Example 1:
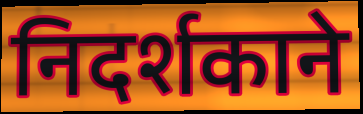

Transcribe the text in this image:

निदर्शकाने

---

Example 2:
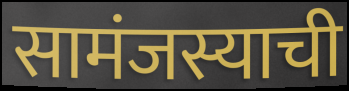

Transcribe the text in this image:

सामंजस्याची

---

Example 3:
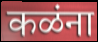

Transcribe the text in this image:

कळंना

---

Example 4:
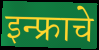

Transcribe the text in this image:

इन्फ्राचे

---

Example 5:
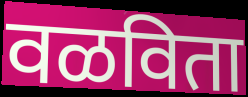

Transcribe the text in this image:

वळविता